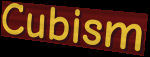
Cubism